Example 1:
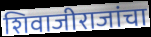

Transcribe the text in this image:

शिवाजीराजांचा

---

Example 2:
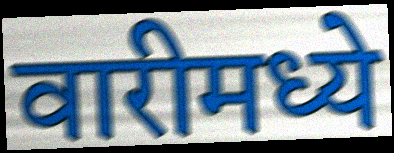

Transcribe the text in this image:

वारीमध्ये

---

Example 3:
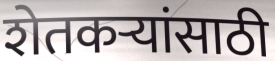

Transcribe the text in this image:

शेतकर्‍यांसाठी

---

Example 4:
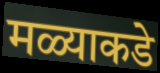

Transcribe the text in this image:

मळ्याकडे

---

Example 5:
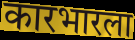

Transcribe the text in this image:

कारभारला